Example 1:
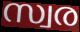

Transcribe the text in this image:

സ്വര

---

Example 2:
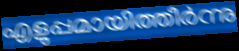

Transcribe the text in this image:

എളുപ്പമായിത്തീർന്നു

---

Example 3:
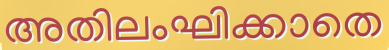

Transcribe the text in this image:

അതിലംഘിക്കാതെ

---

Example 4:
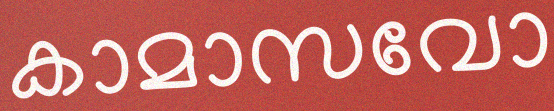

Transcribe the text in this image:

കാമാസവോ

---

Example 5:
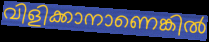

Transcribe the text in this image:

വിളിക്കാനാണെങ്കിൽ